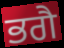
ਭਗੈ